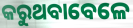
କରୁଥବାବେଳେ